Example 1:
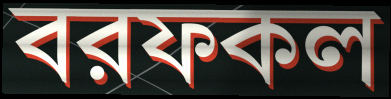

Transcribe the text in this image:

বরফকল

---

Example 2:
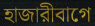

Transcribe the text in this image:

হাজারীবাগে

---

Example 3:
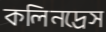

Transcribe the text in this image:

কলিনদ্রেস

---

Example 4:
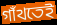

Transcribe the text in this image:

গাঁথতেই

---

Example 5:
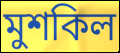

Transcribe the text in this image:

মুশকিল